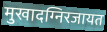
मुखादग्निरजायत